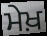
ਮੇਖ਼